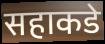
सहाकडे